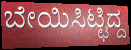
ಬೇಯಿಸಿಟ್ಟಿದ್ದ